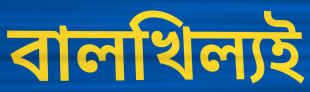
বালখিল্যই